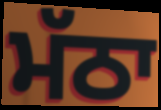
ਮੱਠਾ